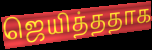
ஜெயித்ததாக